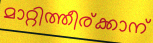
മാറ്റിത്തീര്ക്കാന്